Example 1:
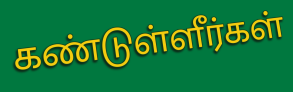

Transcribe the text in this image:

கண்டுள்ளீர்கள்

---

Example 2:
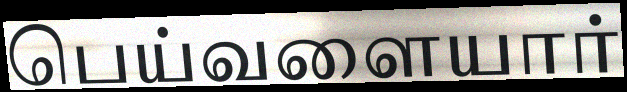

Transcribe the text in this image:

பெய்வளையார்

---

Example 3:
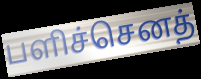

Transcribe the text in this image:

பளிச்செனத்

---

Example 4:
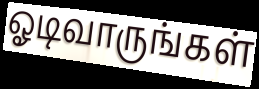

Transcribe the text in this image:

ஓடிவாருங்கள்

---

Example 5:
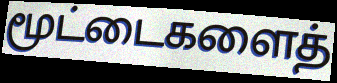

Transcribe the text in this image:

மூட்டைகளைத்